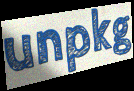
unpkg